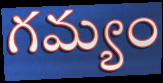
గమ్యం